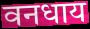
वनधाय